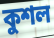
কুশল